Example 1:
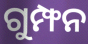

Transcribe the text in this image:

ଗୁମ୍ଫନ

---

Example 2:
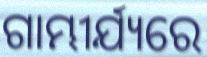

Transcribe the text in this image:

ଗାମ୍ଭୀର୍ଯ୍ୟରେ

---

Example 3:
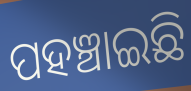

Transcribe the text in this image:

ପହଞ୍ଚାଇଛି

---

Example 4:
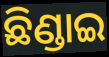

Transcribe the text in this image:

ଛିଣ୍ଡାଇ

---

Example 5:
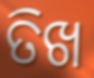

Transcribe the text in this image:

ତିଖ